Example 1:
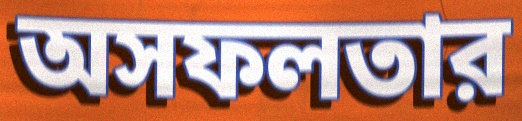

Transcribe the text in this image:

অসফলতার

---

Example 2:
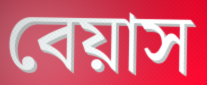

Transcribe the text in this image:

বেয়াস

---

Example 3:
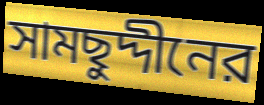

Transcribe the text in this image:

সামছুদ্দীনের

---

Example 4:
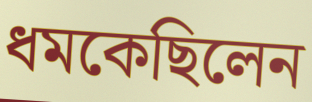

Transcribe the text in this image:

ধমকেছিলেন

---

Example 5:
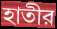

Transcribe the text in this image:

হাতীর